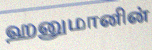
ஹனுமானின்